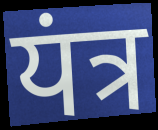
यंत्र